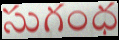
సుగంధ